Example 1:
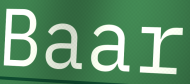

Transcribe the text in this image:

Baar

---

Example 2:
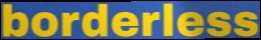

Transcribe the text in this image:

borderless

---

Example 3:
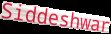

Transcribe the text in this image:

Siddeshwar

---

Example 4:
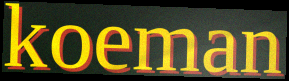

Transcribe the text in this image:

koeman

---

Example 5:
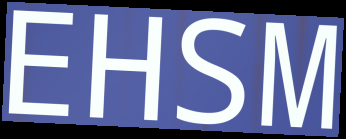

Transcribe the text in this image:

EHSM